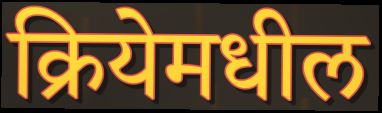
क्रियेमधील